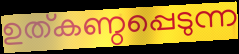
ഉത്കണ്ഠപ്പെടുന്ന